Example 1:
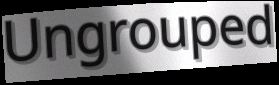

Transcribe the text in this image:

Ungrouped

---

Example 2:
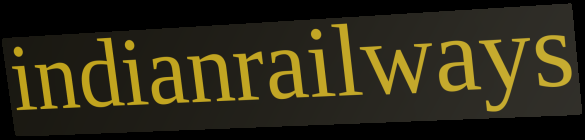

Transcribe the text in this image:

indianrailways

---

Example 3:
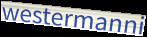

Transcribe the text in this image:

westermanni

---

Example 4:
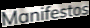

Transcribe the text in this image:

Manifestos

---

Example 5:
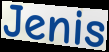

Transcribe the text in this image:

Jenis